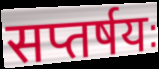
सप्तर्षयः